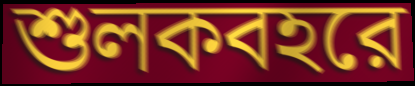
শুলকবহরে